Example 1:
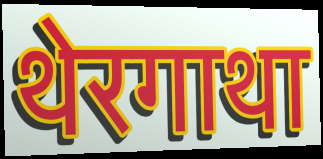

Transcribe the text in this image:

थेरगाथा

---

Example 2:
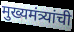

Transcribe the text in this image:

मुख्यमंत्र्यांची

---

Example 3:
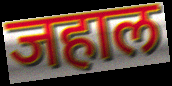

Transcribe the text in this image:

जहाल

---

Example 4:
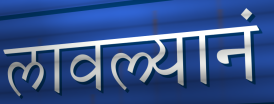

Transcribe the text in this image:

लावल्यानं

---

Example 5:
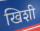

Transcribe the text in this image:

खिशी